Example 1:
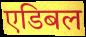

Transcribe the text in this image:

एडिबल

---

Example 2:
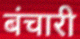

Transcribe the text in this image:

बंचारी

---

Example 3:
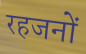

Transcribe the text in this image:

रहजनों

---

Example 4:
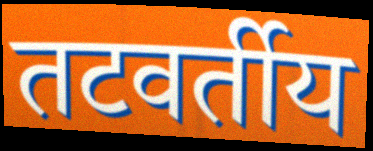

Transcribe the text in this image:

तटवर्तीय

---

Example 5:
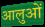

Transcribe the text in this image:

आलुओं